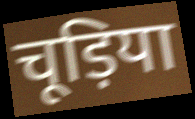
चूड़िया